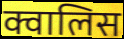
क्वालिस